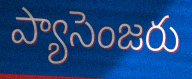
ప్యాసెంజరు